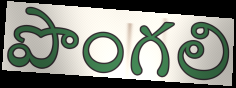
పొంగలి